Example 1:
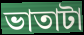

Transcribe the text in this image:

ভাতাটা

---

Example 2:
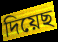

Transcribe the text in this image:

দিয়েছ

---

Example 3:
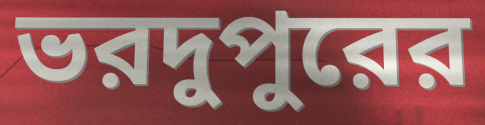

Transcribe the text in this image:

ভরদুপুরের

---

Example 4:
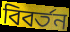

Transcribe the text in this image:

বিবর্তন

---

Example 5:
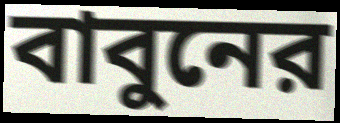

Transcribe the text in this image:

বাবুনের